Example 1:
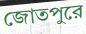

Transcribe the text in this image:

জোতপুরে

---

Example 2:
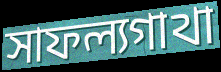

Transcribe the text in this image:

সাফল্যগাথা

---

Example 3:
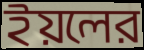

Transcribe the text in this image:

ইয়লের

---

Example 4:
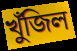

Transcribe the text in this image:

খুঁজিল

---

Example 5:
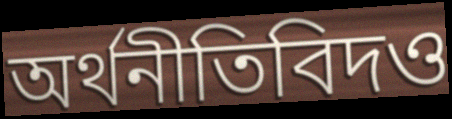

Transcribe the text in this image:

অর্থনীতিবিদও